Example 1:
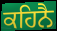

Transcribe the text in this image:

ਕਹਿਨੈ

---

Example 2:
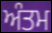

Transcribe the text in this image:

ਅੰਤਮ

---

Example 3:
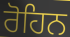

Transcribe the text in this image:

ਰੋਹਿਨ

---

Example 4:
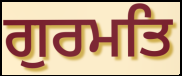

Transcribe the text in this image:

ਗੁਰਮਤਿ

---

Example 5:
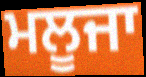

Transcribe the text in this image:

ਮਲੂਜਾ